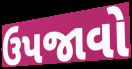
ઉપજાવો